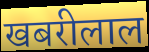
खबरीलाल